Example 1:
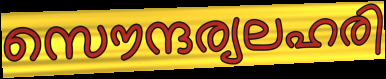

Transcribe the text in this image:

സൌന്ദര്യലഹരി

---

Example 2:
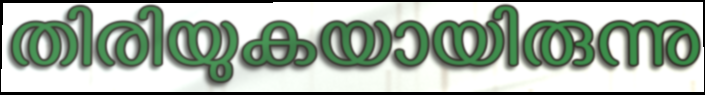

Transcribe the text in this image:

തിരിയുകയായിരുന്നു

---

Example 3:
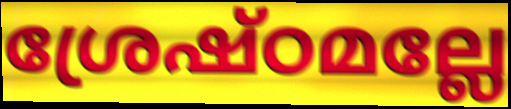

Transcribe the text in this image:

ശ്രേഷ്ഠമല്ലേ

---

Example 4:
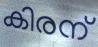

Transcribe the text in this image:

കിരന്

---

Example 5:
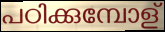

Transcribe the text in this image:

പഠിക്കുമ്പോള്